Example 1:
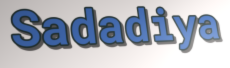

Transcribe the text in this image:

Sadadiya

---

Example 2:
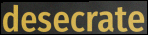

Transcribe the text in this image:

desecrate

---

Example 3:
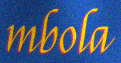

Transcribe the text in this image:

mbola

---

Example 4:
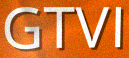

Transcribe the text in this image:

GTVI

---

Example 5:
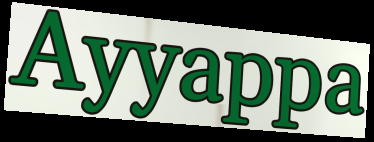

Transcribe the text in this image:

Ayyappa